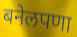
बनेलपणा